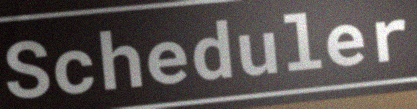
Scheduler